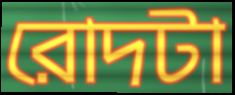
রোদটা